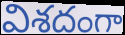
విశదంగా